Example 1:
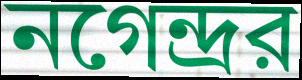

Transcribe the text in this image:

নগেন্দ্রর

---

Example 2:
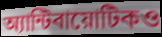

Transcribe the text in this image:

অ্যান্টিবায়োটিকও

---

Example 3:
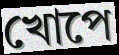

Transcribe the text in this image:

খোপে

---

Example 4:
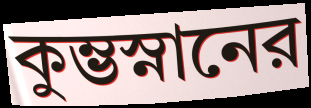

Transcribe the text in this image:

কুম্ভস্নানের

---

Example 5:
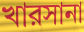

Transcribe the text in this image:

খারসানা